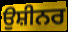
ਉਸ਼ੀਨਰ